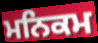
ਮਨਿਕਮ